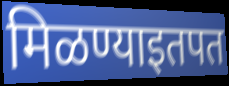
मिळण्याइतपत